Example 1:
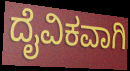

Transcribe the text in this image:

ದೈವಿಕವಾಗಿ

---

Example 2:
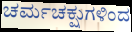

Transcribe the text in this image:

ಚರ್ಮಚಕ್ಷುಗಳಿಂದ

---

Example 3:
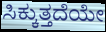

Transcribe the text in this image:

ಸಿಕ್ಕುತ್ತದೆಯೇ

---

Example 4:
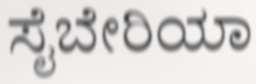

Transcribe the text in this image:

ಸೈಬೇರಿಯಾ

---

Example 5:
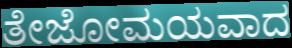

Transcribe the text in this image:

ತೇಜೋಮಯವಾದ